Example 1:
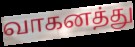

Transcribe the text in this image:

வாகனத்து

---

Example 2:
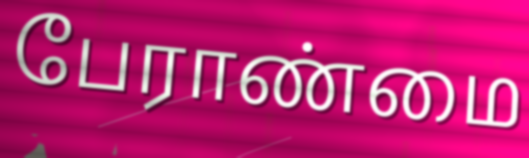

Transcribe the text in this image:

பேராண்மை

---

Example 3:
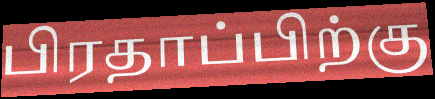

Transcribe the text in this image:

பிரதாப்பிற்கு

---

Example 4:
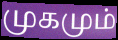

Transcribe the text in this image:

முகமும்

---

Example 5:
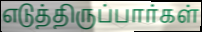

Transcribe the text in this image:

எடுத்திருப்பார்கள்